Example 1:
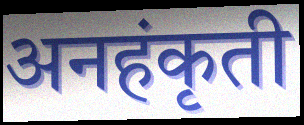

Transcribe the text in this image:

अनहंकृती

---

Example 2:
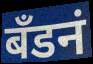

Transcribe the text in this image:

बँडनं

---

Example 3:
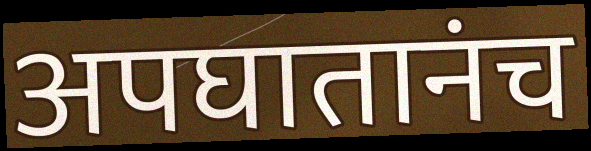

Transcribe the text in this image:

अपघातानंच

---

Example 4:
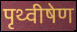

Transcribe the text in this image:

पृथ्वीषेण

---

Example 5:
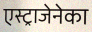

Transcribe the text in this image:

एस्ट्राजेनेका